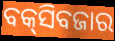
ବକ୍‌ସିବଜାର